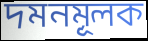
দমনমূলক